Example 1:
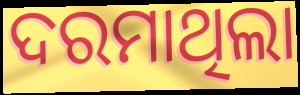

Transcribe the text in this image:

ଦରମାଥିଲା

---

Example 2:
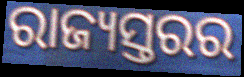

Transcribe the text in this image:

ରାଜ୍ୟସ୍ତରର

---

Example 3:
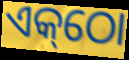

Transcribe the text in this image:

ଏକ୍‌ଠୋ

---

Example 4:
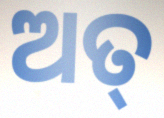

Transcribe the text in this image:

ଅତ୍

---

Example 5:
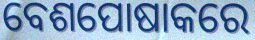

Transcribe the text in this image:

ବେଶପୋଷାକରେ